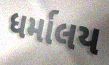
ધર્માલય